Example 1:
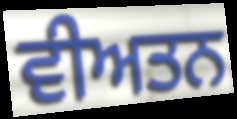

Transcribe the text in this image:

ਵੀਅਤਨ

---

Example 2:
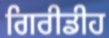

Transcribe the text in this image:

ਗਿਰੀਡੀਹ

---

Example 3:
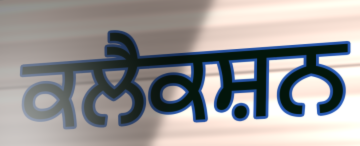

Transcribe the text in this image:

ਕਲੈਕਸ਼ਨ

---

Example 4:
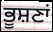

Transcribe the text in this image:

ਭੂਸ਼ਣਾਂ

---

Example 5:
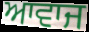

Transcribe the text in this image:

ਆਵਾਜ